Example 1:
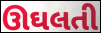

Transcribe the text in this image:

ઊઘલતી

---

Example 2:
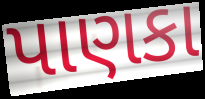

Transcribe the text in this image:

પાણકા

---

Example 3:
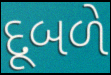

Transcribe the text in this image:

દૂબળે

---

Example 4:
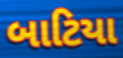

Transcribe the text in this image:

બાટિયા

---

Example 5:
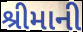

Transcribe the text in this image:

શ્રીમાની